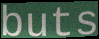
buts